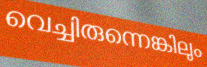
വെച്ചിരുന്നെങ്കിലും